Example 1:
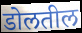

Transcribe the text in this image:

डोलतील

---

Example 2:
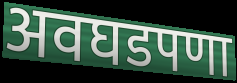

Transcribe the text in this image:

अवघडपणा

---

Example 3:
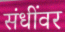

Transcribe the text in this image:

संधींवर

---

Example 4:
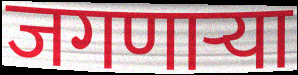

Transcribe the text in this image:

जगणाऱ्या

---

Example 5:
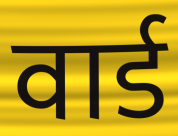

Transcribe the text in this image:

वार्ड